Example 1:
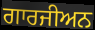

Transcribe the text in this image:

ਗਾਰਜੀਅਨ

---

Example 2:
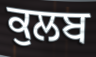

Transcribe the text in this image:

ਕੁਲਬ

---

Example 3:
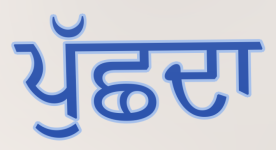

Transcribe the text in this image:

ਪੁੱਛਦਾ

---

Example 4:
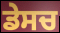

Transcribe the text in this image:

ਡੇਸਚ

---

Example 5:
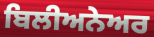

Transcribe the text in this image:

ਬਿਲੀਅਨੇਅਰ